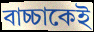
বাচ্চাকেই